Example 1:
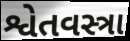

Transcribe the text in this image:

શ્વેતવસ્ત્રા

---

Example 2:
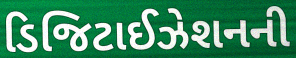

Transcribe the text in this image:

ડિજિટાઈઝેશનની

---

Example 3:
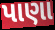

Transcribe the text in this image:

પાણા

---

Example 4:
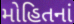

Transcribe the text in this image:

મોહિતનાં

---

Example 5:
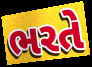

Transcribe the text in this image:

ભરતે